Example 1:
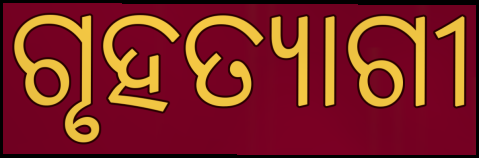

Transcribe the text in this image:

ଗୃହତ୍ୟାଗୀ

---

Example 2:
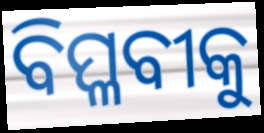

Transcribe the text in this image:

ବିପ୍ଳବୀକୁ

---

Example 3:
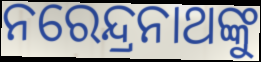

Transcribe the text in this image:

ନରେନ୍ଦ୍ରନାଥଙ୍କୁ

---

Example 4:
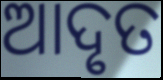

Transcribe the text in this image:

ଆଦୃତ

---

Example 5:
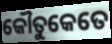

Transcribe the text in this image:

କୌତୁକେତେ